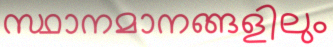
സ്ഥാനമാനങ്ങളിലും